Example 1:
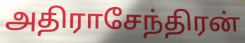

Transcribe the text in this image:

அதிராசேந்திரன்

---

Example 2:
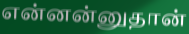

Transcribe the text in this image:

என்னன்னுதான்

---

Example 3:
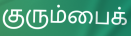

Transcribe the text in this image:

குரும்பைக்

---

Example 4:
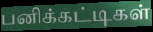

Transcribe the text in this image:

பனிக்கட்டிகள்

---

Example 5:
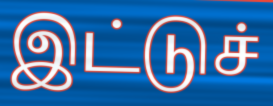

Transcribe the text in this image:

இட்டுச்